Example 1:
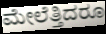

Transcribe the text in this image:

ಮೇಲೆತ್ತಿದರೂ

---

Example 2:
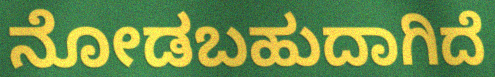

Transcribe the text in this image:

ನೋಡಬಹುದಾಗಿದೆ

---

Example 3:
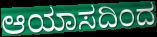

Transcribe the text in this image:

ಆಯಾಸದಿಂದ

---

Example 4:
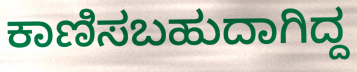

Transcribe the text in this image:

ಕಾಣಿಸಬಹುದಾಗಿದ್ದ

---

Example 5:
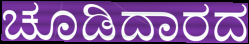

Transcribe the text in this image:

ಚೂಡಿದಾರದ